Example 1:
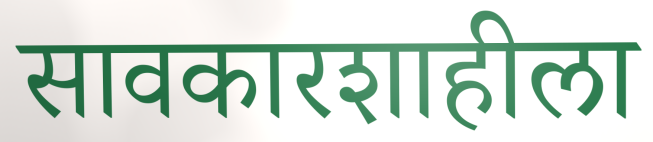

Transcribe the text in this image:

सावकारशाहीला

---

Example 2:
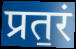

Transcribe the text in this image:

प्रत॒रं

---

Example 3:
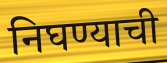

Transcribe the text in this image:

निघण्याची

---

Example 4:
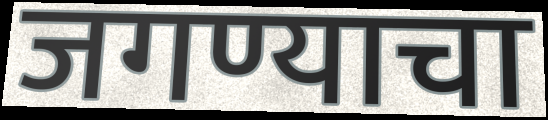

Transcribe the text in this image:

जगण्याचा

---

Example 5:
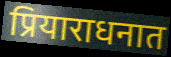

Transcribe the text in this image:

प्रियाराधनात